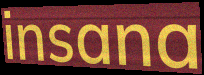
insana